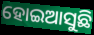
ହୋଇଆସୁଛି